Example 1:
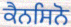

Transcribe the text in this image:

ਕੈਨਸਿਨੋ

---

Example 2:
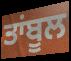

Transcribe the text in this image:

ਤਾਂਬੂਲ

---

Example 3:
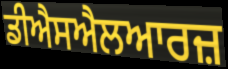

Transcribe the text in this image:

ਡੀਐਸਐਲਆਰਜ਼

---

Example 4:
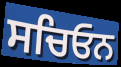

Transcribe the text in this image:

ਸਚਿਓਨ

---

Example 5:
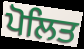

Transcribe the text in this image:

ਪੋਲਿਤ